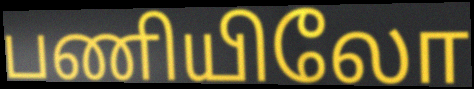
பணியிலோ